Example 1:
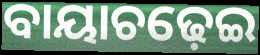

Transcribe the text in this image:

ବାୟାଚଢ଼େଇ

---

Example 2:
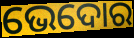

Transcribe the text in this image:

ଭେଦୋର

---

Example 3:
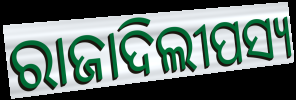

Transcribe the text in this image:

ରାଜାଦିଲୀପସ୍ୟ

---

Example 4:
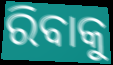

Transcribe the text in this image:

ରିବାକୁ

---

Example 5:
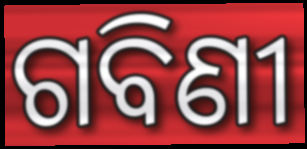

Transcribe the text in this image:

ଗବିଣୀ